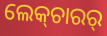
ଲେକ୍‍ଚାରର୍